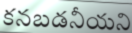
కనబడనీయని